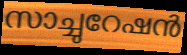
സാച്ചുറേഷൻ